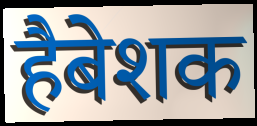
हैबेशक